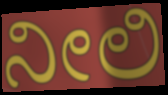
ನೀಲಿ